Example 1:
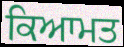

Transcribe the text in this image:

ਕਿਆਮਤ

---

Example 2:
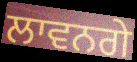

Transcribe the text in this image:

ਲਾਵਨਗੇ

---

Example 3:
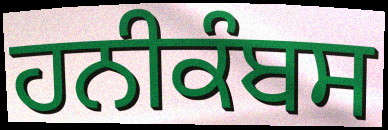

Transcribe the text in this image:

ਹਨੀਕੰਬਸ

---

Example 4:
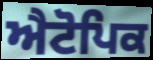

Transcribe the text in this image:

ਐਟੋਪਿਕ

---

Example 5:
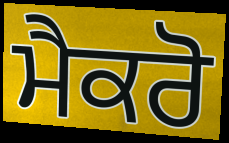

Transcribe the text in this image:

ਮੈਕਰੋ